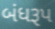
બંધરૂપ